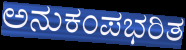
ಅನುಕಂಪಭರಿತ